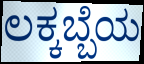
ಲಕ್ಕಬ್ಬೆಯ